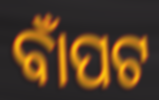
ବାଁପଟ